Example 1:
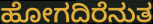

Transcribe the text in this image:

ಹೋಗದಿರೆನುತ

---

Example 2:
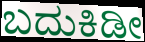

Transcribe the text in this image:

ಬದುಕಿಡೀ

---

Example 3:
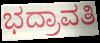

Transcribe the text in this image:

ಭದ್ರಾವತಿ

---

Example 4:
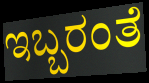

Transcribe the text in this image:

ಇಬ್ಬರಂತೆ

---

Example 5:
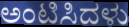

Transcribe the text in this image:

ಅಂಟಿಸಿದಳು